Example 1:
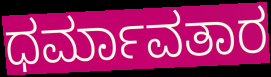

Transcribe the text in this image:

ಧರ್ಮಾವತಾರ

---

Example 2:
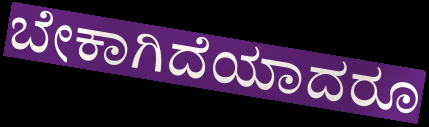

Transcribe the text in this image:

ಬೇಕಾಗಿದೆಯಾದರೂ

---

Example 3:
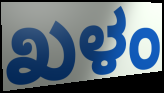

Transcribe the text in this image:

ಖಳಂ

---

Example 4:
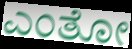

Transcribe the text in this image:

ಎಂತೋ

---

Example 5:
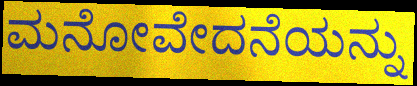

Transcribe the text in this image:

ಮನೋವೇದನೆಯನ್ನು